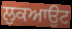
ਲੁਕਆਉਟ